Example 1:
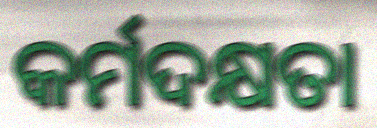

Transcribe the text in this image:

କର୍ମଦକ୍ଷତା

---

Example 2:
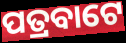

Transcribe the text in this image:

ପତ୍ରବାଟେ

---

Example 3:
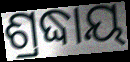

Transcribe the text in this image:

ଶ୍ରଦ୍ଧାୟ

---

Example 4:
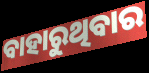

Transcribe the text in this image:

ବାହାରୁଥିବାର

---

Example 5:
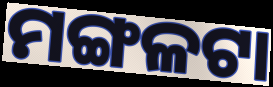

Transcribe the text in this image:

ମଙ୍ଗଳଟା